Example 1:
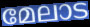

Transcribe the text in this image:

മേലാട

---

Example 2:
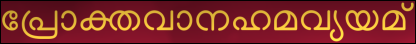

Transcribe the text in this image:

പ്രോക്തവാനഹമവ്യയമ്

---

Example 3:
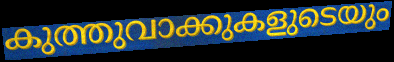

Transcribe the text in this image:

കുത്തുവാക്കുകളുടെയും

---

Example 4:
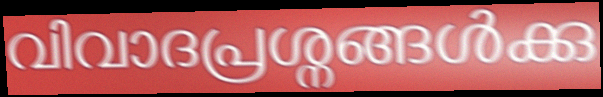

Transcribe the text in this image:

വിവാദപ്രശ്നങ്ങൾക്കു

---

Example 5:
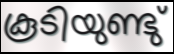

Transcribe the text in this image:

കൂടിയുണ്ടു്